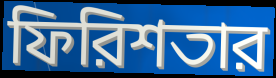
ফিরিশতার